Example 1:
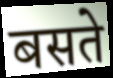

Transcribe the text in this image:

बसते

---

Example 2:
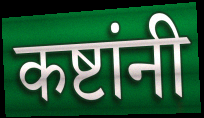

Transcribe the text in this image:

कष्टांनी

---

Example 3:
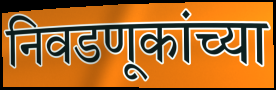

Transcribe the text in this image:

निवडणूकांच्या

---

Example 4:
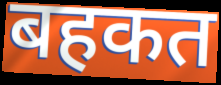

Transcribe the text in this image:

बहकत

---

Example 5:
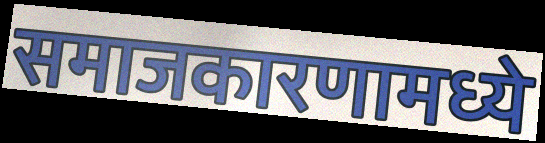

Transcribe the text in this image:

समाजकारणामध्ये